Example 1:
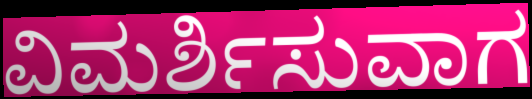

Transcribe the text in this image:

ವಿಮರ್ಶಿಸುವಾಗ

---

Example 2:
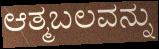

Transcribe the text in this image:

ಆತ್ಮಬಲವನ್ನು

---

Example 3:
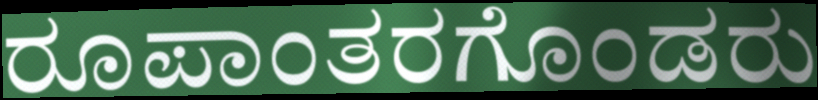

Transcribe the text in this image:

ರೂಪಾಂತರಗೊಂಡರು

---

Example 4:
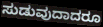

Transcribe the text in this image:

ಸುಡುವುದಾದರೂ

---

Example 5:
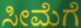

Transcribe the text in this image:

ಸೀಮೆಗೆ